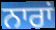
ਨਾਰਾਂ